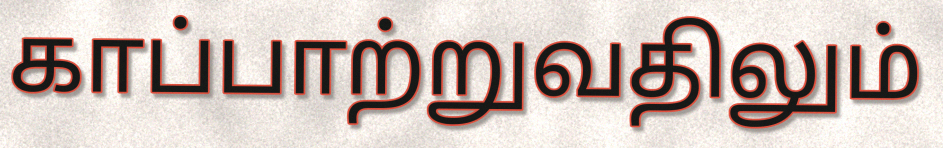
காப்பாற்றுவதிலும்